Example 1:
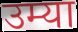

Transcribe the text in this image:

उम्या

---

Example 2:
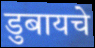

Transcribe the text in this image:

डुबायचे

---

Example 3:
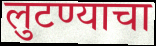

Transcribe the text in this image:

लुटण्याचा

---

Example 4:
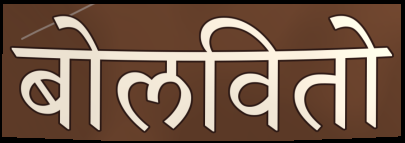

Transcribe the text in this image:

बोलवितो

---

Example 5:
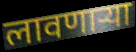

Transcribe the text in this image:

लावणाऱ्या